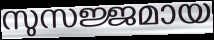
സുസജ്ജമായ